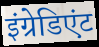
इंग्रेडिएंट